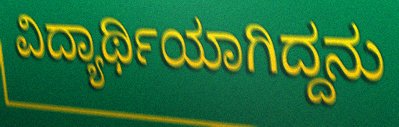
ವಿದ್ಯಾರ್ಥಿಯಾಗಿದ್ದನು